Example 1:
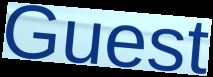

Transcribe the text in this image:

Guest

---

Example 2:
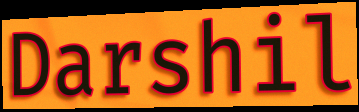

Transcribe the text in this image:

Darshil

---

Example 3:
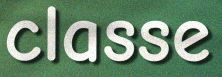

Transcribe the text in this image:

classe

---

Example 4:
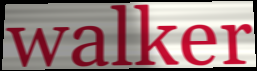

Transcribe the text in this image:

walker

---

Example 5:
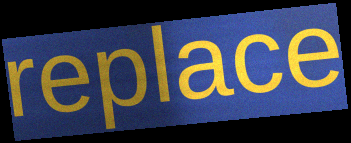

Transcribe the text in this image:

replace